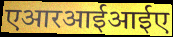
एआरआईआईए